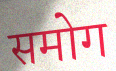
समोग